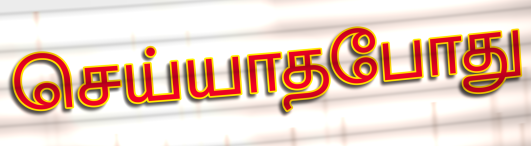
செய்யாதபோது